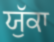
ਯੁੱਕਾ